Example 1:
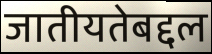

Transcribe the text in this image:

जातीयतेबद्दल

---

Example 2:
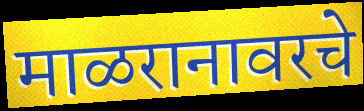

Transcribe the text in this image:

माळरानावरचे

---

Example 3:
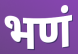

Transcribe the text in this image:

भणं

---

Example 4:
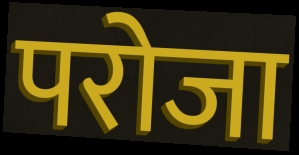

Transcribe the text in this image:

परोजा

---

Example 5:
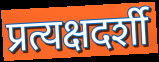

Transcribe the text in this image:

प्रत्यक्षदर्शी